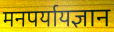
मनपर्यायज्ञान